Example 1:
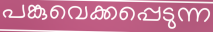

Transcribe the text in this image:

പങ്കുവെക്കപ്പെടുന്ന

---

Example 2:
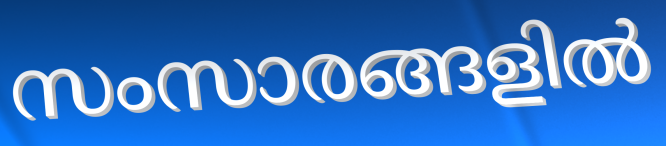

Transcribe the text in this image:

സംസാരങ്ങളിൽ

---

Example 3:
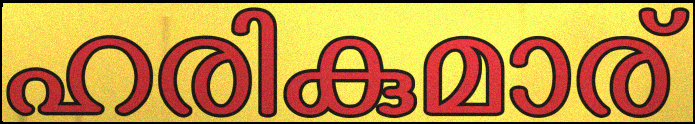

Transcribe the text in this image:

ഹരികുമാര്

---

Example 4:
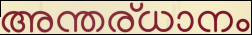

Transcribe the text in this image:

അന്തര്ധാനം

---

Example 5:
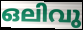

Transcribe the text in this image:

ഒലിവു